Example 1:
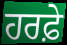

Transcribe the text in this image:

ਹਰਫ਼ੇ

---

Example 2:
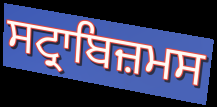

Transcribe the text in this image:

ਸਟ੍ਰਾਬਿਜ਼ਮਸ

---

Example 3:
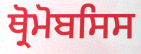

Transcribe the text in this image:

ਥ੍ਰੋਮੋਬਸਿਸ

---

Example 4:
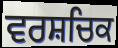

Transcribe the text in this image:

ਵਰਸ਼ਚਿਕ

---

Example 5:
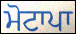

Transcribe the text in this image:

ਮੋਟਾਪਾ